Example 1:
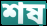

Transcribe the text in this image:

শষ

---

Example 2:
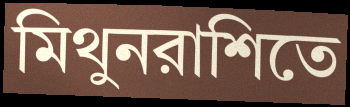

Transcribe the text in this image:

মিথুনরাশিতে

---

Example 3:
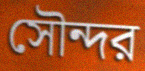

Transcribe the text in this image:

সৌন্দর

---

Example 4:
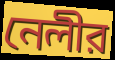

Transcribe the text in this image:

নেলীর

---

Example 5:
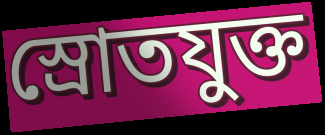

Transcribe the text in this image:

স্রোতযুক্ত